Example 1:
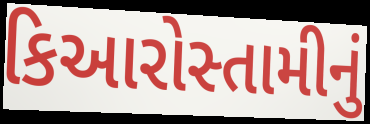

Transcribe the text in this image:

કિઆરોસ્તામીનું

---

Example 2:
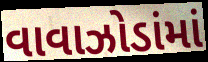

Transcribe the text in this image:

વાવાઝોડાંમાં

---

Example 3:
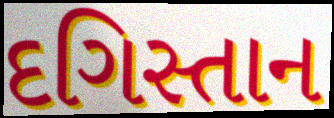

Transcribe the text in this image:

દગિસ્તાન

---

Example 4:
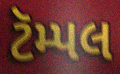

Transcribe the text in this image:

ટૅમ્પલ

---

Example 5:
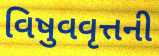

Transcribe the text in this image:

વિષુવવૃત્તની